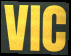
VIC